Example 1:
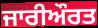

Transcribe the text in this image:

ਜਾਰੀਔਰਤ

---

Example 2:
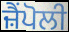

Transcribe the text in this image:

ਜ਼ੈਂਪੋਲੀ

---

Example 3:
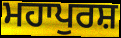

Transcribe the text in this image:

ਮਹਾਪੁਰਸ਼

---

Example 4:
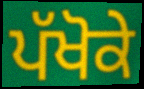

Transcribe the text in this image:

ਪੱਖੋਕੇ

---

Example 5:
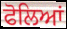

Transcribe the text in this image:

ਫੋਲਿਆਂ